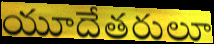
యూదేతరులూ